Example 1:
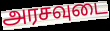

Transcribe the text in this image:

அரசவுடை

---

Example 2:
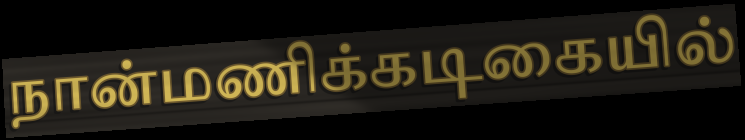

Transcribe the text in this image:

நான்மணிக்கடிகையில்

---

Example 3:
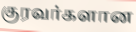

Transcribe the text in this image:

குரவர்களான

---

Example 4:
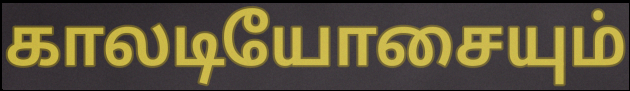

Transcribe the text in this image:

காலடியோசையும்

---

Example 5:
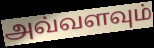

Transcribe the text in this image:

அவ்வளவும்